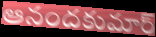
ఆనందకుమార్